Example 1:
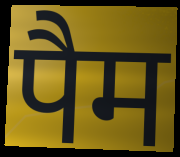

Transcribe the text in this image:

पैम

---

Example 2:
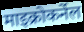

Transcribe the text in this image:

माइक्रोकर्नेल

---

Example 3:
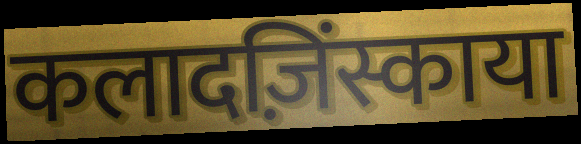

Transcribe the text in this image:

कलादज़िंस्काया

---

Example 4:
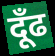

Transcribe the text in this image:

दूँढ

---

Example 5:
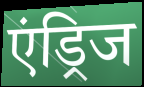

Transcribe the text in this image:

एंड्रिज